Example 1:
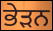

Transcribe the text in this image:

ਭੇੜਨ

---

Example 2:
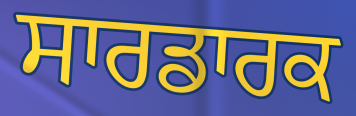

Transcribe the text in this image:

ਸਾਰਡਾਰਕ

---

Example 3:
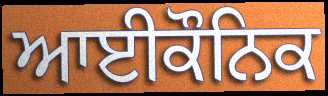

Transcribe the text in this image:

ਆਈਕੌਨਿਕ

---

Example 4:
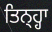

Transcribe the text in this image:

ਤਿਨ੍ਹ੍ਹਾ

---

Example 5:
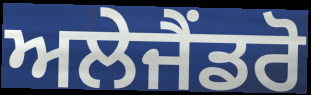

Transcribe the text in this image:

ਅਲੇਜੈਂਡਰੋ